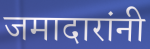
जमादारांनी